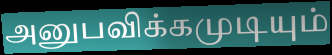
அனுபவிக்கமுடியும்